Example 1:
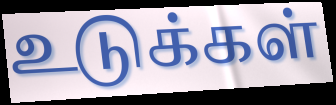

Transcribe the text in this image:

உடுக்கள்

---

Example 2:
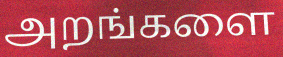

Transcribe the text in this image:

அறங்களை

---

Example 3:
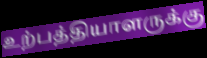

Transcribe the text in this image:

உற்பத்தியாளருக்கு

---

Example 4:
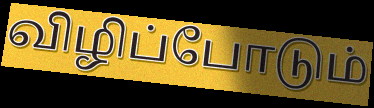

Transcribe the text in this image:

விழிப்போடும்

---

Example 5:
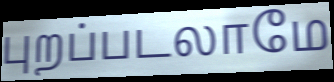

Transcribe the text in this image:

புறப்படலாமே